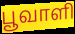
பூவாளி